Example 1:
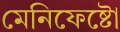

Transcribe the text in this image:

মেনিফেষ্টো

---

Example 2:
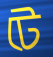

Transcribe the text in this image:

টে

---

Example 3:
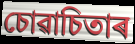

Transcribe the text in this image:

চোৱাচিতাৰ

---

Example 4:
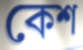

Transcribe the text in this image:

কেশ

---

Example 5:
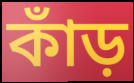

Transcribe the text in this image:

কাঁড়